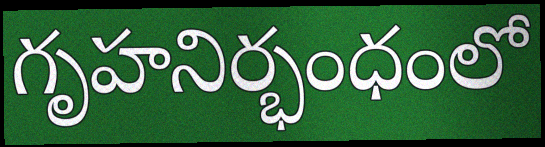
గృహనిర్భంధంలో